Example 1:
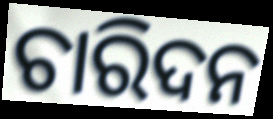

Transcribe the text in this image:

ଚାରିଦନ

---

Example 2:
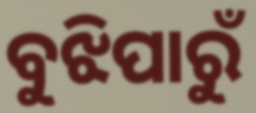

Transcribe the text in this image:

ବୁଝିପାରୁଁ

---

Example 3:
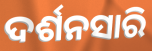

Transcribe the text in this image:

ଦର୍ଶନସାରି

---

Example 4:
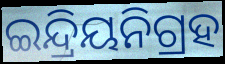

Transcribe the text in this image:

ଇନ୍ଦ୍ରିୟନିଗ୍ରହ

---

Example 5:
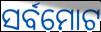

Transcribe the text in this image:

ସର୍ବମୋଟ